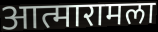
आत्मारामला